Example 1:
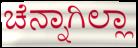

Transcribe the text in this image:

ಚೆನ್ನಾಗಿಲ್ಲಾ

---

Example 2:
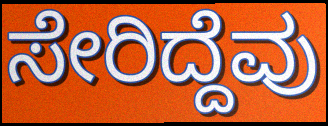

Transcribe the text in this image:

ಸೇರಿದ್ದೆವು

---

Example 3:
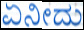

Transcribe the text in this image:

ಏನೀದು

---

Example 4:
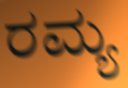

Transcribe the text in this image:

ರಮ್ಯ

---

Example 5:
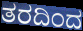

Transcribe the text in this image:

ತರದಿಂದ